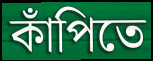
কাঁপিতে